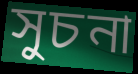
সুচনা